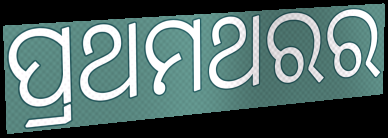
ପ୍ରଥମଥରର